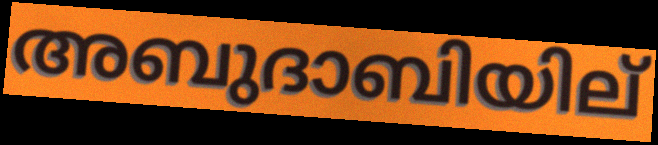
അബുദാബിയില്